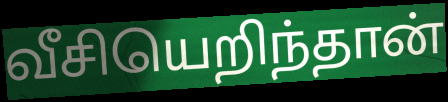
வீசியெறிந்தான்